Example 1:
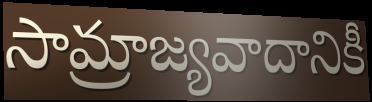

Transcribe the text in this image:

సామ్రాజ్యవాదానికీ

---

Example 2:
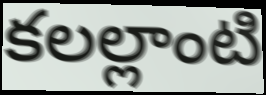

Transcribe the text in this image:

కలల్లాంటి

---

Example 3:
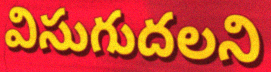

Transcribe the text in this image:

విసుగుదలని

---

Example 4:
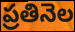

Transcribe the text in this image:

ప్రతినెల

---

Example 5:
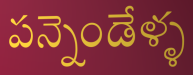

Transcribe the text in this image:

పన్నెండేళ్ళ